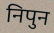
निपुन